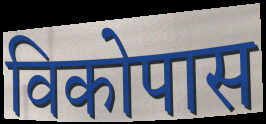
विकोपास